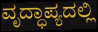
ವೃದ್ಧಾಪ್ಯದಲ್ಲಿ